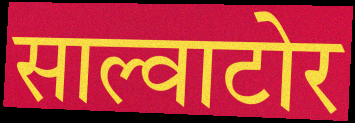
साल्वाटोर